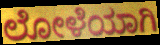
ಲೋಳೆಯಾಗಿ